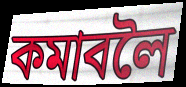
কমাবলৈ